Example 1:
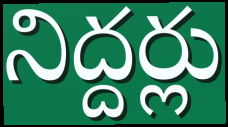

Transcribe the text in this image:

నిద్దర్లు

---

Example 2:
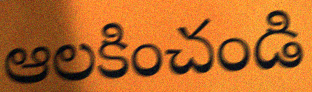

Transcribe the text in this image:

ఆలకించండి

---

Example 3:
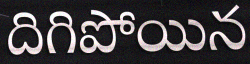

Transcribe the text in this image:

దిగిపోయిన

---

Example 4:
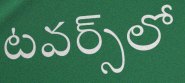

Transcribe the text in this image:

టవర్స్‌లో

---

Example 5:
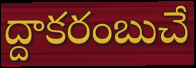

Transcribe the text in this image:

ద్దాకరంబుచే